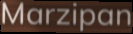
Marzipan